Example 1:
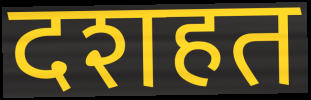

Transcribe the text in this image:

दशहत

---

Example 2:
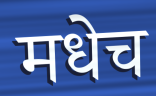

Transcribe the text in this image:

मधेच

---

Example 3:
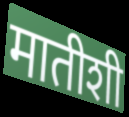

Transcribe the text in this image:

मातीशी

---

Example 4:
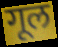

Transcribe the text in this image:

गूल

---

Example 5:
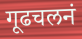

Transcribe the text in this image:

गूढचलनं